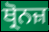
ਥ੍ਰੋਨਜ਼